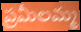
ప్రమీలమ్మ